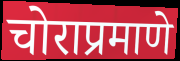
चोराप्रमाणे